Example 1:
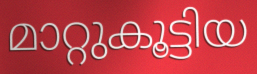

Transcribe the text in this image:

മാറ്റുകൂട്ടിയ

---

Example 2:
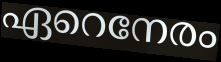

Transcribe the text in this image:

ഏറെനേരം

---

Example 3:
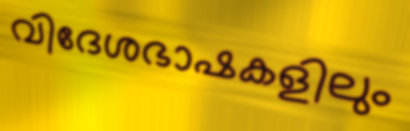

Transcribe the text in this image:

വിദേശഭാഷകളിലും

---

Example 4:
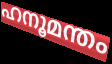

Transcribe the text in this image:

ഹനൂമന്തം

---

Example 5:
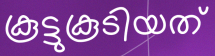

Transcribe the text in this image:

കൂട്ടുകൂടിയത്